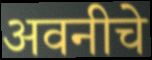
अवनीचे